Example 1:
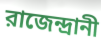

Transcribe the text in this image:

রাজেন্দ্রানী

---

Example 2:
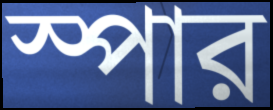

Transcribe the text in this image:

স্পার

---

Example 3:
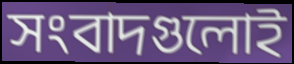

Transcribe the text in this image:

সংবাদগুলোই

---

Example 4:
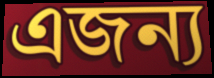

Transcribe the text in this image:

এজন্য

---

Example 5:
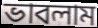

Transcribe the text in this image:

ভাবলাম